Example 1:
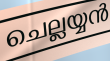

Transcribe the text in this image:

ചെല്ലയ്യൻ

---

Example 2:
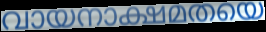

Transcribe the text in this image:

വായനാക്ഷമതയെ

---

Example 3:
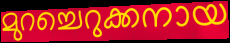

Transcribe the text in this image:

മുറച്ചെറുക്കനായ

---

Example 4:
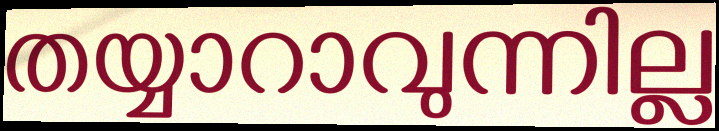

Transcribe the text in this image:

തയ്യാറാവുന്നില്ല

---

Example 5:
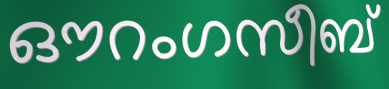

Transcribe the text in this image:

ഔറംഗസീബ്